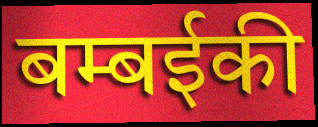
बम्बईकी